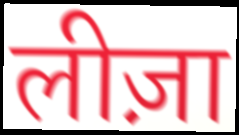
लीज़ा